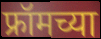
फ्रॉमच्या